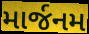
માર્જનમ